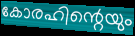
കോരഹിന്റെയും